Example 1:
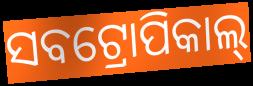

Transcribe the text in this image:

ସବଟ୍ରୋପିକାଲ୍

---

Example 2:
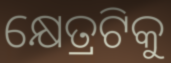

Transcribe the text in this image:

କ୍ଷେତ୍ରଟିକୁ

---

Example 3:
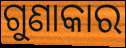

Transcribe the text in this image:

ଗୁଣାକାର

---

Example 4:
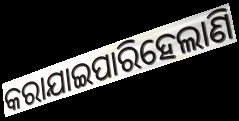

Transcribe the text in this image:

କରାଯାଇପାରିହେଲାଣି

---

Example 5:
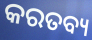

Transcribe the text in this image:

କରତବ୍ୟ